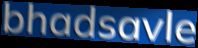
bhadsavle